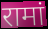
रामां